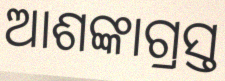
ଆଶଙ୍କାଗ୍ରସ୍ତ